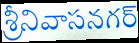
శ్రీనివాసనగర్